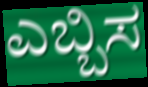
ಎಬ್ಬಿಸ